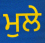
ਮੁਲੇ